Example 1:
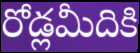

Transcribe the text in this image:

రోడ్లమీదికి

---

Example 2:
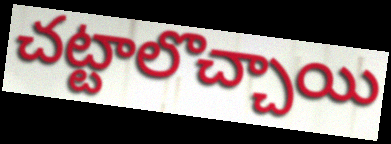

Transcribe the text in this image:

చట్టాలొచ్చాయి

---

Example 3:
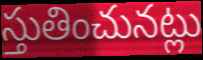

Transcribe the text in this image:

స్తుతించునట్లు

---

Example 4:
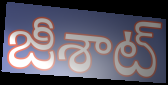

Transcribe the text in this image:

జీశాట్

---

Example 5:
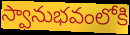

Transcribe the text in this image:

స్వానుభవంలోకి